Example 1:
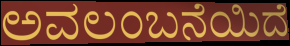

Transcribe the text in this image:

ಅವಲಂಬನೆಯಿದೆ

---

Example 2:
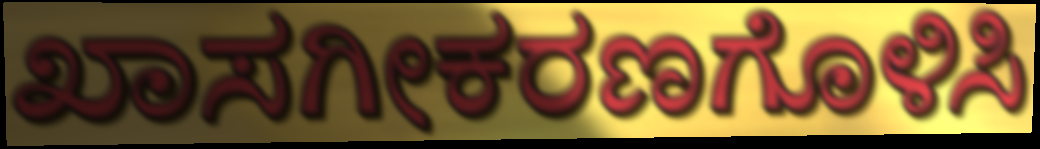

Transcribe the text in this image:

ಖಾಸಗೀಕರಣಗೊಳಿಸಿ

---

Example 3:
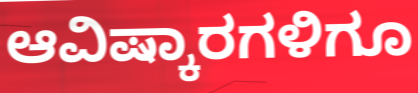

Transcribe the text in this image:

ಆವಿಷ್ಕಾರಗಳಿಗೂ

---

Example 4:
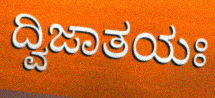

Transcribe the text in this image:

ದ್ವಿಜಾತಯಃ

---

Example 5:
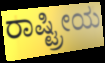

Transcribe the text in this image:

ರಾಷ್ಟ್ರೀಯ